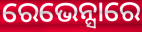
ରେଭେନ୍ସାରେ